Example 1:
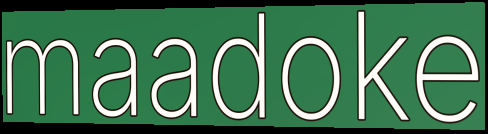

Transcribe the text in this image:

maadoke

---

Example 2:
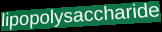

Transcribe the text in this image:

lipopolysaccharide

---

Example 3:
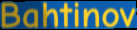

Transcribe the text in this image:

Bahtinov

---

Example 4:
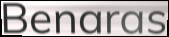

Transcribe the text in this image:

Benaras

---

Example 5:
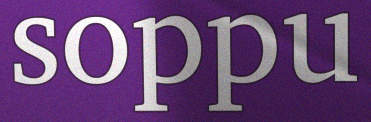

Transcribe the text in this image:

soppu